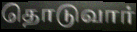
தொடுவார்